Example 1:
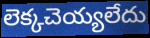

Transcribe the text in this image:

లెక్కచెయ్యలేదు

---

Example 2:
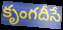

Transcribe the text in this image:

కృంగదీసే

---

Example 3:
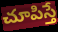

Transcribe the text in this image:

చూపిస్తే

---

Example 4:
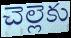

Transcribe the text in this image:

చెల్లెకు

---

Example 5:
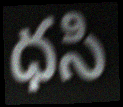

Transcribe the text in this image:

ధసి